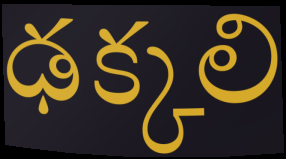
ఢక్కలి